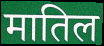
मातिल